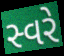
સ્વરે